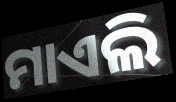
ମାଏଲି